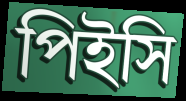
পিইসি